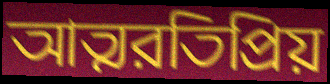
আত্মরতিপ্রিয়